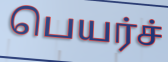
பெயர்ச்